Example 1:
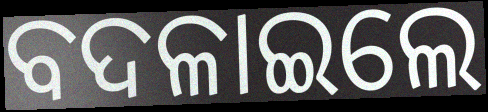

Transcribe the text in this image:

ବଦଳାଇଲେ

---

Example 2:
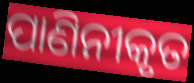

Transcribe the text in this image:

ପାଣିନୀକୃତ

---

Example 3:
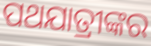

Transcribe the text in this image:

ପଥଯାତ୍ରୀଙ୍କର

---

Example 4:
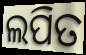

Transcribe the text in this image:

ଲପିତ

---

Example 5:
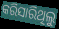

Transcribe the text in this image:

କରିସାରିଥିଲୁ